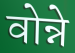
वोन्ने